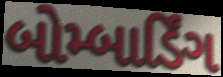
બોમ્બાર્ડિંગ